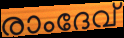
രാംദേവ്